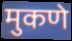
मुकणे